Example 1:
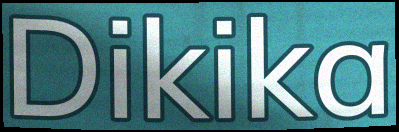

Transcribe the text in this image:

Dikika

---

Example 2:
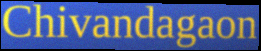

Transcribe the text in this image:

Chivandagaon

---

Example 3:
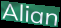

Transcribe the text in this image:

Alian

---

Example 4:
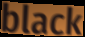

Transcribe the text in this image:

black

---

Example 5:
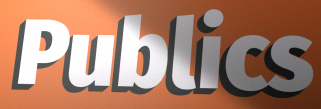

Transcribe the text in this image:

Publics